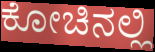
ಕೋಚಿನಲ್ಲಿ